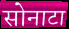
सोनाटा